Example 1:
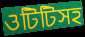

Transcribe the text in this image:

ওটিটিসহ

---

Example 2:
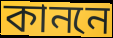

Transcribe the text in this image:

কাননে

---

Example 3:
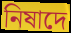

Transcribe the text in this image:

নিষাদে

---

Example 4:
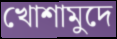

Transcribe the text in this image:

খোশামুদে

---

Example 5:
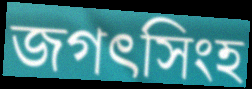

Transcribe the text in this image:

জগৎসিংহ